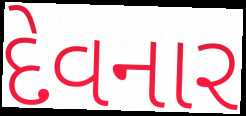
દેવનાર